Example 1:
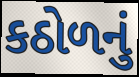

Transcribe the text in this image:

કઠોળનું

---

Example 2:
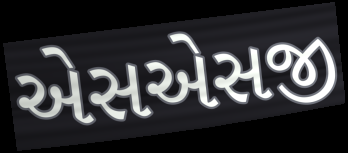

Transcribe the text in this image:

એસએસજી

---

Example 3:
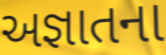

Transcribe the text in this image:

અજ્ઞાતના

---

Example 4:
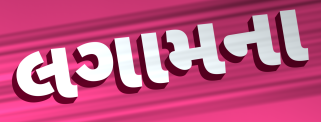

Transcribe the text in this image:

લગામના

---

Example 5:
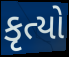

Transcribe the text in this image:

કૃત્યો